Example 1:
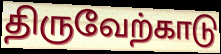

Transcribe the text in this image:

திருவேற்காடு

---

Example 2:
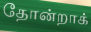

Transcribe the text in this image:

தோன்றாக்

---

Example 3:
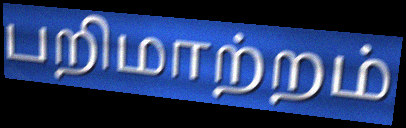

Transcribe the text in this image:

பறிமாற்றம்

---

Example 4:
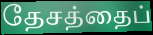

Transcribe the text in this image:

தேசத்தைப்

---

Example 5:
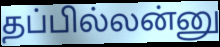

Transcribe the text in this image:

தப்பில்லன்னு